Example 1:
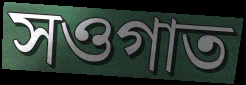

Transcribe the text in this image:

সওগাত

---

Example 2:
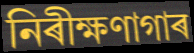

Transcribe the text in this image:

নিৰীক্ষণাগাৰ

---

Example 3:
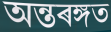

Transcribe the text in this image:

অন্তৰঙ্গত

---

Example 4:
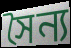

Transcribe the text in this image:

সৈন্য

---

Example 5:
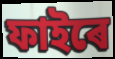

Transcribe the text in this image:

ফাইৰে